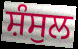
ਸ਼ੰਸੁਲ